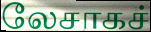
லேசாகச்